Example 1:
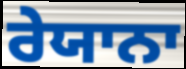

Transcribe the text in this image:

ਰੇਯਾਨਾ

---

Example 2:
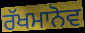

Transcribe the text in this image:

ਰੱਖਮਾਨੋਵ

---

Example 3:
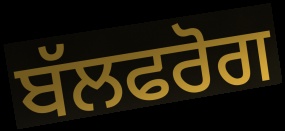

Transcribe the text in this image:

ਬੱਲਫਰੋਗ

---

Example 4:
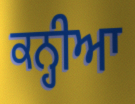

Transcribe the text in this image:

ਕਨ੍ਹੀਆ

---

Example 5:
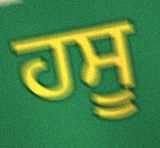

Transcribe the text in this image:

ਹਸੂ